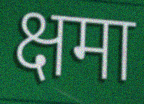
क्षमा